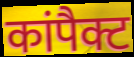
कांपैक्ट